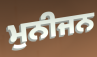
ਮੁਨੀਜਨ